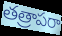
తత్రాపరా